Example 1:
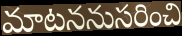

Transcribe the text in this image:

మాటననుసరించి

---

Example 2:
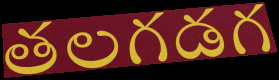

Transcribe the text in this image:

తలగడగ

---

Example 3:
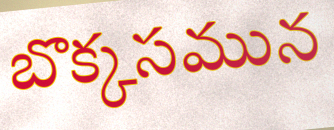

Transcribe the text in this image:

బొక్కసమున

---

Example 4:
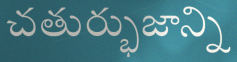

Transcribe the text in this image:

చతుర్భుజాన్ని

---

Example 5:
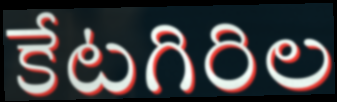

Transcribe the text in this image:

కేటగిరిల